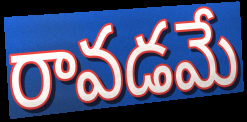
రావడమే